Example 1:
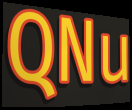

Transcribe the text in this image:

QNu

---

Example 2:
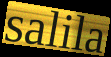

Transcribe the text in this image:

salila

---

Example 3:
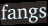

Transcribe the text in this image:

fangs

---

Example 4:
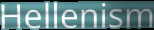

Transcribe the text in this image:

Hellenism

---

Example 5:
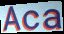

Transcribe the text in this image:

Aca